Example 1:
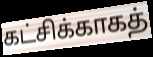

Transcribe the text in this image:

கட்சிக்காகத்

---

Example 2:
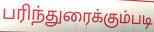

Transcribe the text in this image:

பரிந்துரைக்கும்படி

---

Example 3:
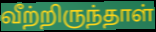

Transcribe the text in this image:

வீற்றிருந்தாள்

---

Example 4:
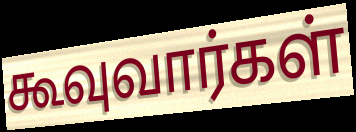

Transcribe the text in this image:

கூவுவார்கள்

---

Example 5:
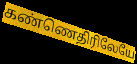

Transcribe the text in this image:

கண்ணெதிரிலேயே